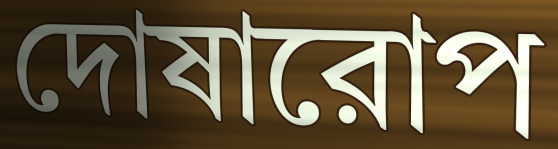
দোষারোপ